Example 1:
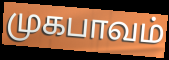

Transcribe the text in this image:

முகபாவம்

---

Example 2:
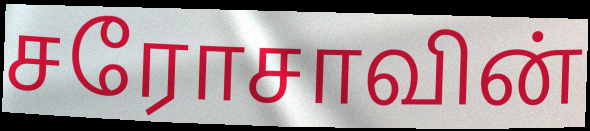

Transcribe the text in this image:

சரோசாவின்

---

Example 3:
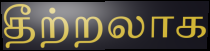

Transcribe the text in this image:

தீற்றலாக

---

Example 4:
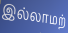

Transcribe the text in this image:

இல்லாமற்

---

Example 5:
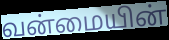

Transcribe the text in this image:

வன்மையின்